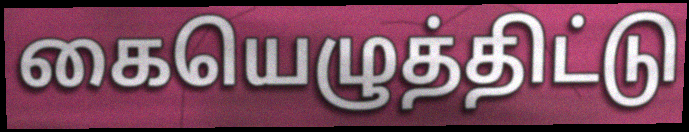
கையெழுத்திட்டு